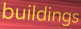
buildings